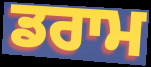
ਡਰਾਮ